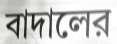
বাদালের